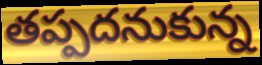
తప్పదనుకున్న